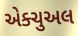
એક્ચુઅલ